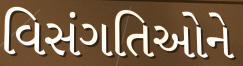
વિસંગતિઓને